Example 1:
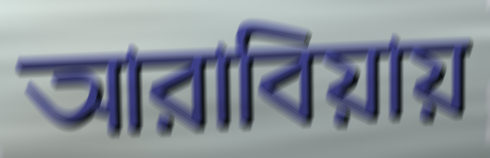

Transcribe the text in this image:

আরাবিয়ায়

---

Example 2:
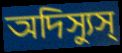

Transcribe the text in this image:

অদিস্যুস্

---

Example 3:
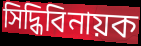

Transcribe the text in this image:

সিদ্ধিবিনায়ক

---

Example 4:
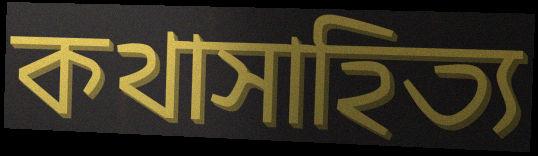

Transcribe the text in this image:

কথাসাহিত্য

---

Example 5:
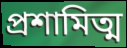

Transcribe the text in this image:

প্রশামিত্ম